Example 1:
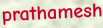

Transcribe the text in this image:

prathamesh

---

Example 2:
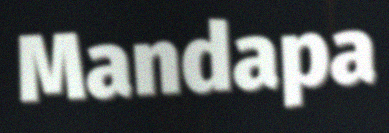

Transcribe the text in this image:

Mandapa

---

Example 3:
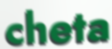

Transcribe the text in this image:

cheta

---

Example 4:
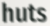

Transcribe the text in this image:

huts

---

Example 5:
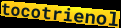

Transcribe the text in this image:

tocotrienol